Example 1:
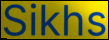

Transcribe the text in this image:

Sikhs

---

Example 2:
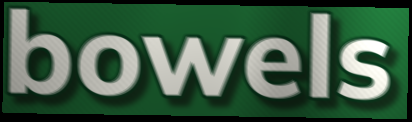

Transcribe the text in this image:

bowels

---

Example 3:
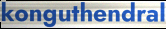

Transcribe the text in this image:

konguthendral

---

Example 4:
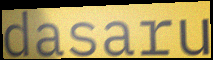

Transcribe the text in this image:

dasaru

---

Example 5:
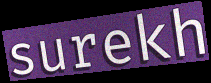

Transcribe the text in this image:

surekh